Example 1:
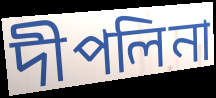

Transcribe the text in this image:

দীপলিনা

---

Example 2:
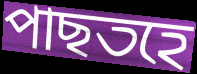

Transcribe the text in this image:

পাছতহে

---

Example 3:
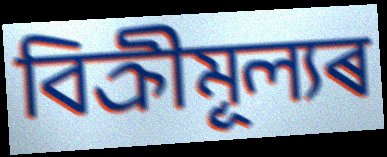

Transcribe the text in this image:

বিক্ৰীমূল্যৰ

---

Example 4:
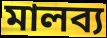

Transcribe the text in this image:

মালব্য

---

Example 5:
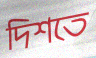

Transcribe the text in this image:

দিশতে